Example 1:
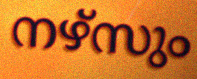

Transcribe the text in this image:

നഴ്സും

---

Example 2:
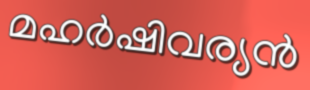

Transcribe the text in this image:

മഹർഷിവര്യൻ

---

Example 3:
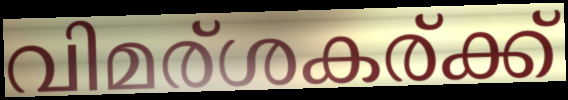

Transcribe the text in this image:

വിമര്ശകര്ക്ക്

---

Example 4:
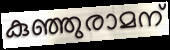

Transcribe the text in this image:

കുഞ്ഞുരാമന്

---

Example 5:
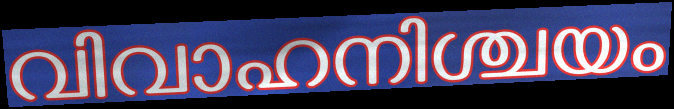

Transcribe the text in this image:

വിവാഹനിശ്ചയം